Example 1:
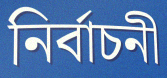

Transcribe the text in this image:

নির্বাচনী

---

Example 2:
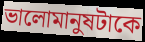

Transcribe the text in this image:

ভালোমানুষটাকে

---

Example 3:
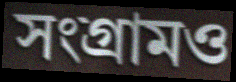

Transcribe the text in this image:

সংগ্রামও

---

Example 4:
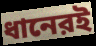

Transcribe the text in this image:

ধানেরই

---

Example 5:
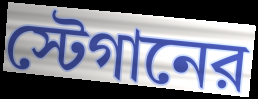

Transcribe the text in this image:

স্টেগানের